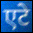
एटे